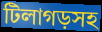
টিলাগড়সহ